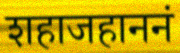
शहाजहाननं